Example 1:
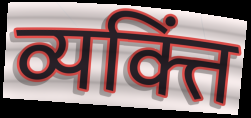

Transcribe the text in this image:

व्यक्तिं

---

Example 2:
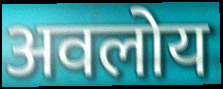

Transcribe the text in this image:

अवलोय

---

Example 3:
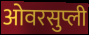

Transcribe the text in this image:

ओवरसुप्ली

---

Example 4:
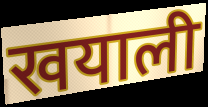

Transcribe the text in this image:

खयाली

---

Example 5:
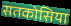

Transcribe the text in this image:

सतकोसिया